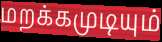
மறக்கமுடியும்